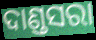
ଦାଣ୍ଡସରା